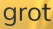
grot